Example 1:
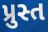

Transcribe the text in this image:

પ્રુસ્ત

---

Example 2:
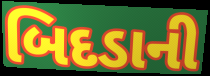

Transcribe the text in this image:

બિદડાની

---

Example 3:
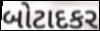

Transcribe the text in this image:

બોટાદકર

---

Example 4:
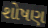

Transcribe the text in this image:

શોષણ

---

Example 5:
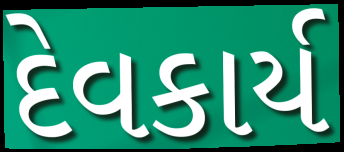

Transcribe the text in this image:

દેવકાર્ય